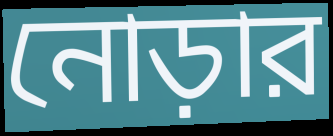
নোড়ার